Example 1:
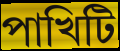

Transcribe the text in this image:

পাখিটি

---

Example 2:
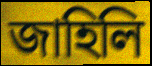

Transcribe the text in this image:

জাহিলি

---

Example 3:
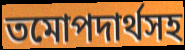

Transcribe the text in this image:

তমোপদার্থসহ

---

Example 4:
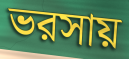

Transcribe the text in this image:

ভরসায়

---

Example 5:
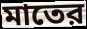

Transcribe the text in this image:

মাতের